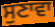
ਸੁਣਾਵਾ